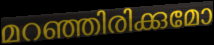
മറഞ്ഞിരിക്കുമോ